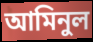
আমিনুল